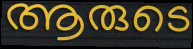
ആരുടെ